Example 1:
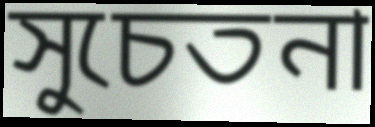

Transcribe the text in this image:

সুচেতনা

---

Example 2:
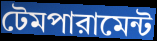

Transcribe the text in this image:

টেমপারামেন্ট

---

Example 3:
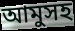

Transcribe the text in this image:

আমুসহ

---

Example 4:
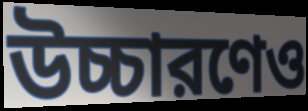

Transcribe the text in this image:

উচ্চারণেও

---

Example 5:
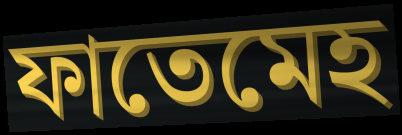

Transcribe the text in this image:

ফাতেমেহ